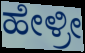
ಹೇಳ್ರೀ